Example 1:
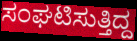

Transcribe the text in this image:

ಸಂಘಟಿಸುತ್ತಿದ್ದ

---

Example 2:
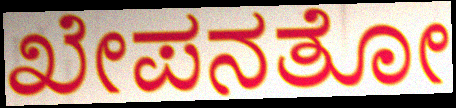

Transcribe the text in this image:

ಖೇಪನತೋ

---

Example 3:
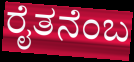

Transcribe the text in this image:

ರೈತನೆಂಬ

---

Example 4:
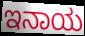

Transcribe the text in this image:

ಇನಾಯ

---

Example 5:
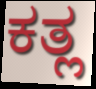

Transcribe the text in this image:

ಕತ್ಲ